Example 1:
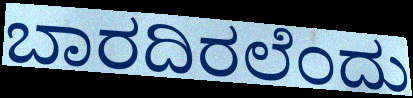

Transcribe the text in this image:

ಬಾರದಿರಲೆಂದು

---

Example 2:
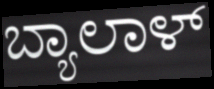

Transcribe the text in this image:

ಬ್ಯಾಲಾಳ್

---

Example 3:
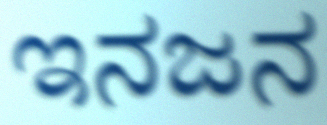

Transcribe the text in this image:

ಇನಜನ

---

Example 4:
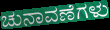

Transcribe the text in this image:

ಚುನಾವಣೆಗಳು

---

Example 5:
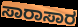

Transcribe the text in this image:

ಸಾರಾಸಾರ